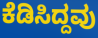
ಕೆಡಿಸಿದ್ದವು